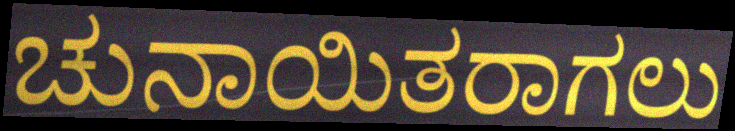
ಚುನಾಯಿತರಾಗಲು